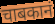
चाबकानं